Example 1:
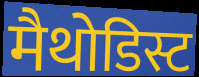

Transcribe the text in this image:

मैथोडिस्ट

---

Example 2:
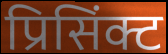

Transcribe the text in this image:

प्रिसिंक्ट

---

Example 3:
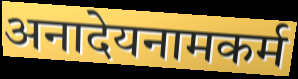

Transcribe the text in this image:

अनादेयनामकर्म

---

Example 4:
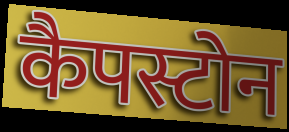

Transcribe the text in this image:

कैपस्टोन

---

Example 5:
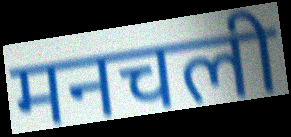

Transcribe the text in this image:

मनचली